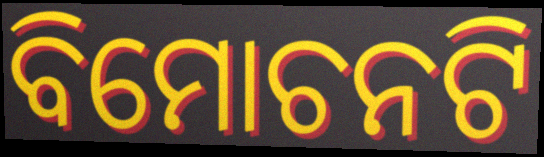
ବିମୋଚନଟି